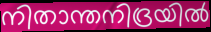
നിതാന്തനിദ്രയിൽ